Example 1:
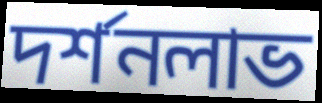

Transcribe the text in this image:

দর্শনলাভ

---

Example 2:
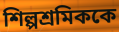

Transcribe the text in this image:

শিল্পশ্রমিককে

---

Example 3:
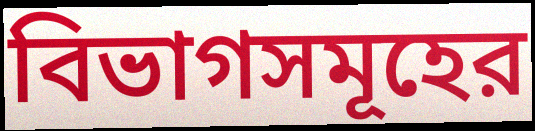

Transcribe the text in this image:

বিভাগসমূহের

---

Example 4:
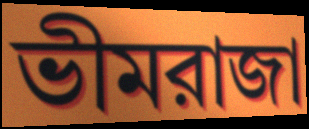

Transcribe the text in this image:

ভীমরাজা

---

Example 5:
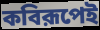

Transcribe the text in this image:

কবিরূপেই